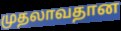
முதலாவதான